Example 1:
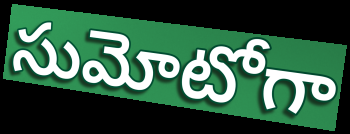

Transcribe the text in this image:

సుమోటోగా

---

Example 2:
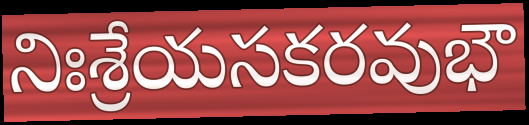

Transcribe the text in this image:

నిఃశ్రేయసకరవుభౌ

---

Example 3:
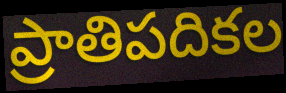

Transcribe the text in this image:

ప్రాతిపదికల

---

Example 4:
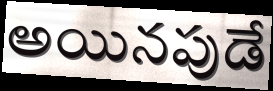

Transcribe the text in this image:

అయినపుడే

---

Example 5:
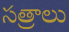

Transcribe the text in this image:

సత్రాలు